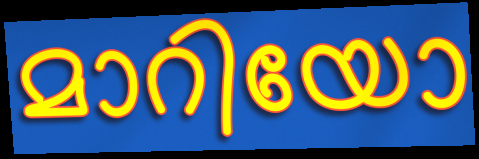
മാറിയോ